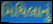
મિથિલાનું